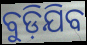
ବୁଡ଼ିଯିବ